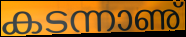
കടന്നാണു്